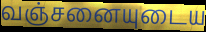
வஞ்சனையுடைய